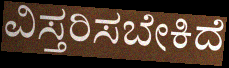
ವಿಸ್ತರಿಸಬೇಕಿದೆ